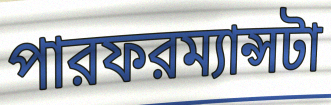
পারফরম্যান্সটা